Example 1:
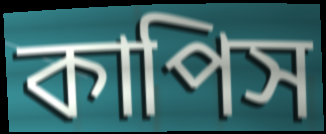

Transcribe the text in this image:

কাপিস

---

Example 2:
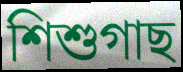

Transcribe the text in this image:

শিশুগাছ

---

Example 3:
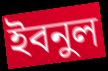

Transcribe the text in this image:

ইবনুল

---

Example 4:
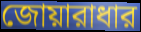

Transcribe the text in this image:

জোয়ারাধার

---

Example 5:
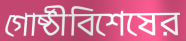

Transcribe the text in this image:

গোষ্ঠীবিশেষের